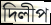
দিলীপ